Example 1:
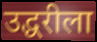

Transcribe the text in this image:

उद्धरीला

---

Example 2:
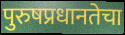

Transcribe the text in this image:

पुरुषप्रधानतेचा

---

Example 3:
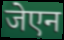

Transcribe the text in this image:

जेएन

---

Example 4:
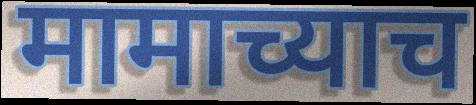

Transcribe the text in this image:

मामाच्याच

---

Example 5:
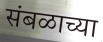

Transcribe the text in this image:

संबळाच्या